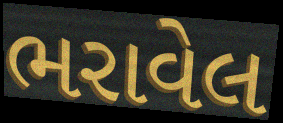
ભરાવેલ